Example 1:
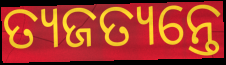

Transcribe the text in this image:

ତ୍ୟଜତ୍ୟନ୍ତେ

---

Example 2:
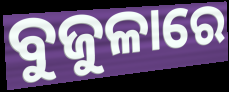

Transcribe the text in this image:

ବୁଜୁଳାରେ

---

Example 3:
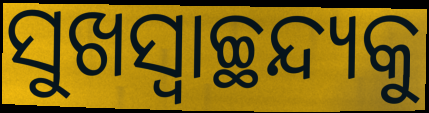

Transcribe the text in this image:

ସୁଖସ୍ଵାଚ୍ଛନ୍ଦ୍ୟକୁ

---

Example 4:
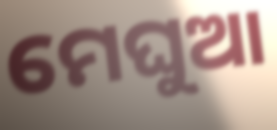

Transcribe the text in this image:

ମେଘୁଆ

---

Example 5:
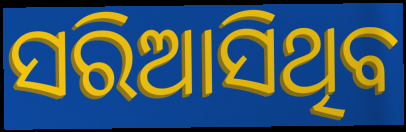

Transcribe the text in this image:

ସରିଆସିଥିବ